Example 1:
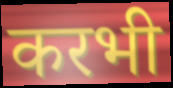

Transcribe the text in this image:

करभी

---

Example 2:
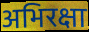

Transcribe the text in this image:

अभिरक्षा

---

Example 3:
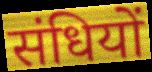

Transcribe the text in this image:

संधियों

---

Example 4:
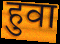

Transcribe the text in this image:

हुवा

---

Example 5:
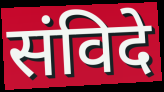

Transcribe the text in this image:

संविदे